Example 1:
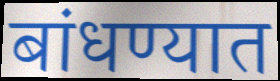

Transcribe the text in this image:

बांधण्यात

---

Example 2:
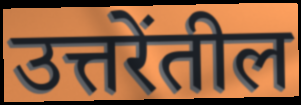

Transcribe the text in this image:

उत्तरेंतील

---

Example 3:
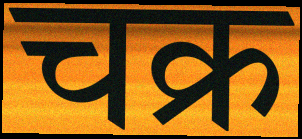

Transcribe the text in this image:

चक्र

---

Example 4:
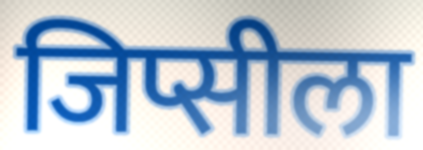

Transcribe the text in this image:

जिप्सीला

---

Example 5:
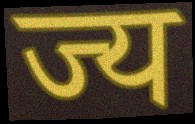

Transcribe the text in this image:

ज्य